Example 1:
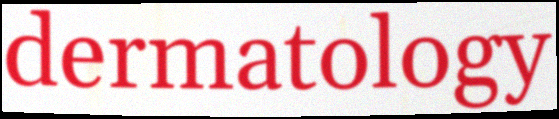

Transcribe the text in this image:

dermatology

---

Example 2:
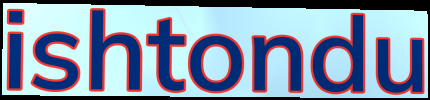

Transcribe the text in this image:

ishtondu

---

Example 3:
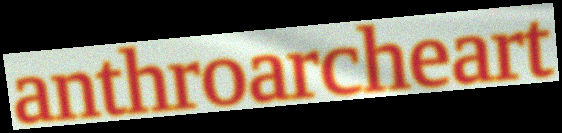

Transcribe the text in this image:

anthroarcheart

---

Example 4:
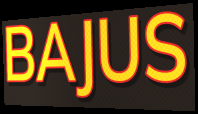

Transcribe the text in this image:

BAJUS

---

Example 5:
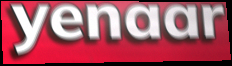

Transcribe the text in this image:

yenaar